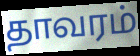
தாவரம்